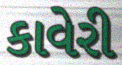
કાવેરી